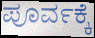
ಪೂರ್ವಕ್ಕೆ